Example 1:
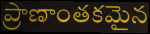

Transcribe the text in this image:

ప్రాణాంతకమైన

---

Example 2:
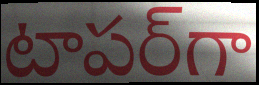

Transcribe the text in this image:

టాపర్‌గా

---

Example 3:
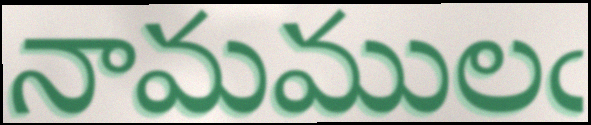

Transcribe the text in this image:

నామములఁ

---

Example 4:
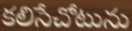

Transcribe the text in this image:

కలిసేచోటును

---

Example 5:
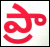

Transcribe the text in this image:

ప్రా